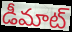
డీమాట్